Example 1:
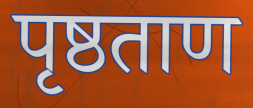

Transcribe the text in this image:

पृष्ठताण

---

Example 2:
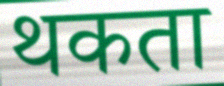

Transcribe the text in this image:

थकता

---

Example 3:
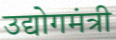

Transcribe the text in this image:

उद्योगमंत्री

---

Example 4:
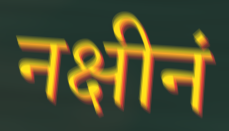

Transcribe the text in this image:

नक्षीनं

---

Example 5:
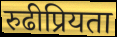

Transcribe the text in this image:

रुढीप्रियता